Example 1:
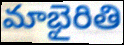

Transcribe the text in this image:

మాభైరితి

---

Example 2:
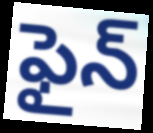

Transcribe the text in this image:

ఫైన్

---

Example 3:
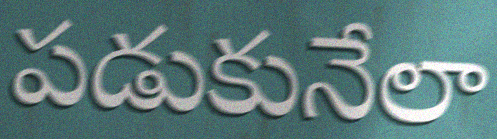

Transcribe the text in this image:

పడుకునేలా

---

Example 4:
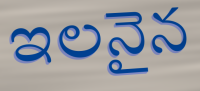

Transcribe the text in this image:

ఇలనైన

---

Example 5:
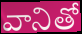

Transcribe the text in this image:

వానితో